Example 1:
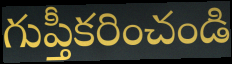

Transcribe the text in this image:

గుప్తీకరించండి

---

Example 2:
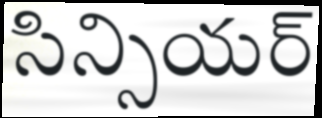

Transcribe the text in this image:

సిన్సియర్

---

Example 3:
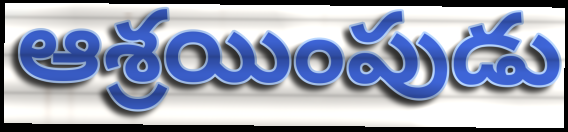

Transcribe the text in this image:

ఆశ్రయింపుడు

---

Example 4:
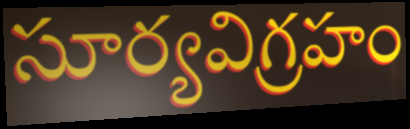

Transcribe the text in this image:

సూర్యవిగ్రహం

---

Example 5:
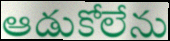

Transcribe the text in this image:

ఆడుకోలేను